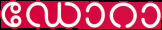
ഡോറാ